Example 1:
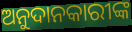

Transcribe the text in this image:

ଅନୁଦାନକାରୀଙ୍କ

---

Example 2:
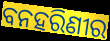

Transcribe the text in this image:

ବନହରିଣୀର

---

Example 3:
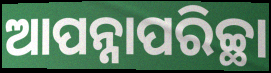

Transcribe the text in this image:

ଆପନ୍ନାପରିଚ୍ଛା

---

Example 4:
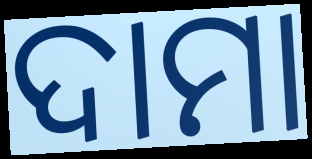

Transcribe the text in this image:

ଦାମା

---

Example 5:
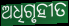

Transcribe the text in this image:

ଅଧିଗୃହୀତ